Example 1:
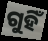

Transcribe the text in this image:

ଗୁହିଁ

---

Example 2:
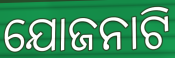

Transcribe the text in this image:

ଯୋଜନାଟି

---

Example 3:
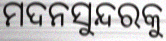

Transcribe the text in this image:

ମଦନସୁନ୍ଦରକୁ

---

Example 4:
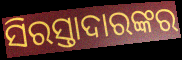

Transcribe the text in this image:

ସିରସ୍ତାଦାରଙ୍କର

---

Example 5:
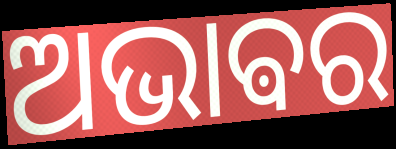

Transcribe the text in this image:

ଅଭାଵର